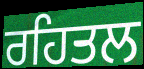
ਰਹਿਤਲ